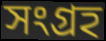
সংগ্ৰহ